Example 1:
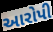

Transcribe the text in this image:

આરોપી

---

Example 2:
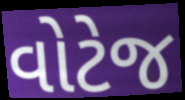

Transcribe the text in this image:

વોટેજ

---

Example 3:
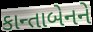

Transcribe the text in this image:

કાન્તાબેનને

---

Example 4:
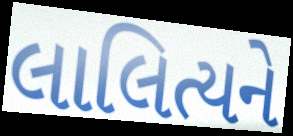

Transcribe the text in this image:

લાલિત્યને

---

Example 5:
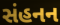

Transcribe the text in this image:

સંહનન